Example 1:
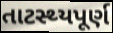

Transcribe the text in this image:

તાટસ્થ્યપૂર્ણ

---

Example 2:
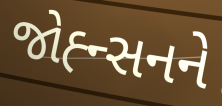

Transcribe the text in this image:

જોહ્ન્સનને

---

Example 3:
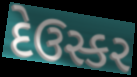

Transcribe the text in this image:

દેઉસ્કર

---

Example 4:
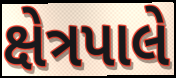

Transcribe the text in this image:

ક્ષેત્રપાલે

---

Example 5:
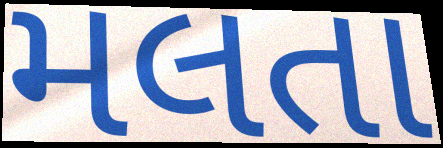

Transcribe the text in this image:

મલતા